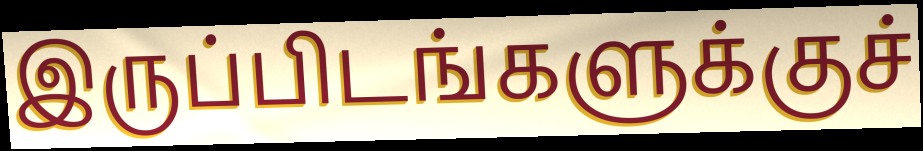
இருப்பிடங்களுக்குச்